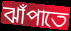
ঝাঁপাতে